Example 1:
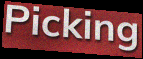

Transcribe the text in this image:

Picking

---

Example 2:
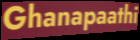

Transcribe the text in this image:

Ghanapaathi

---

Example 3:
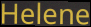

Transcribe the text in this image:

Helene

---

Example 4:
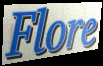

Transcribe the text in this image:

Flore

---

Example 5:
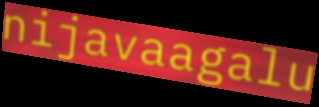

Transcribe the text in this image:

nijavaagalu